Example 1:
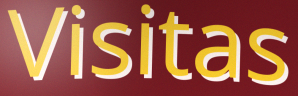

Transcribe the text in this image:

Visitas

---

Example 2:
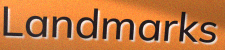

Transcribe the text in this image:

Landmarks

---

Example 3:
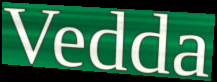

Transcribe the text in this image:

Vedda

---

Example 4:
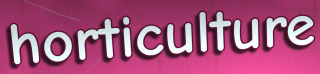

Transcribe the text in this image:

horticulture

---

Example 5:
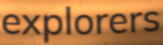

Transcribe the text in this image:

explorers